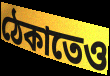
ঠেকাতেও